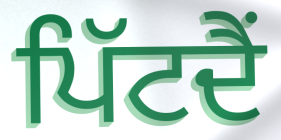
ਪਿੱਟਦੈਂ